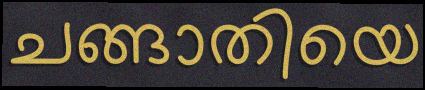
ചങ്ങാതിയെ